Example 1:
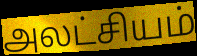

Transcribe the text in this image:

அலட்சியம்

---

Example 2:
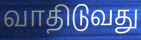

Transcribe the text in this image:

வாதிடுவது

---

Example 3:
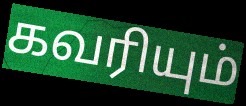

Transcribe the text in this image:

கவரியும்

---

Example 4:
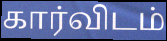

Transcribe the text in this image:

கார்விடம்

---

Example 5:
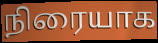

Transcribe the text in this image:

நிரையாக